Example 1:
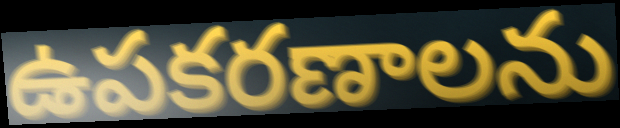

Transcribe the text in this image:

ఉపకరణాలను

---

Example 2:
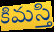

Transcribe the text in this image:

కిమస్తి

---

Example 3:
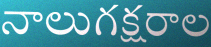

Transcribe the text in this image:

నాలుగక్షరాల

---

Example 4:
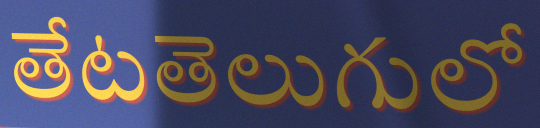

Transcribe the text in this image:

తేటతెలుగులో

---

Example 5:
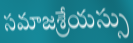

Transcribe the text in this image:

సమాజశ్రేయస్సు